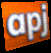
apj